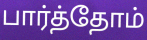
பார்த்தோம்